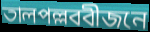
তালপল্লববীজনে